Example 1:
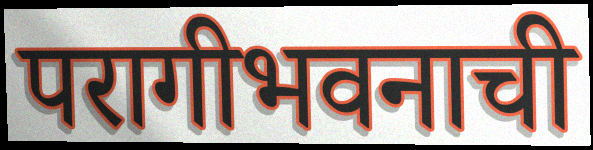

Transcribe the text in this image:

परागीभवनाची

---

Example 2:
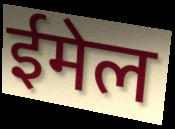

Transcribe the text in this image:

ईमेल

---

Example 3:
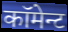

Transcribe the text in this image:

कॉमेन्ट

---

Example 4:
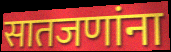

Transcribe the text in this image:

सातजणांना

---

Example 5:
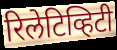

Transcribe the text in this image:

रिलेटिव्हिटी